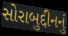
સોરાબુદ્દીનનું